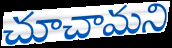
చూచామని